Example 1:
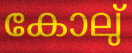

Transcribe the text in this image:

കോലു്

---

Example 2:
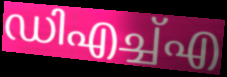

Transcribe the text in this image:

ഡിഎച്ച്എ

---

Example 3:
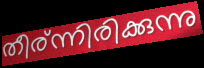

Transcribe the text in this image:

തീര്ന്നിരിക്കുന്നു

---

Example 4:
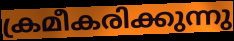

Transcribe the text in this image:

ക്രമീകരിക്കുന്നു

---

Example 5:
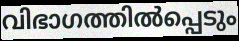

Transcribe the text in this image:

വിഭാഗത്തിൽപ്പെടും